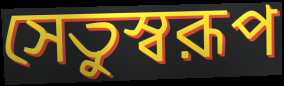
সেতুস্বরূপ